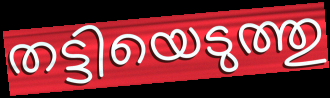
തട്ടിയെടുത്തു